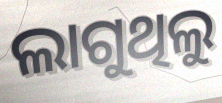
ଲାଗୁଥିଲୁ